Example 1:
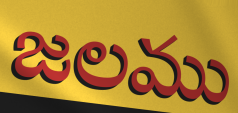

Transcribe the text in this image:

జలము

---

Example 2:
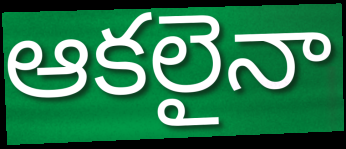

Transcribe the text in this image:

ఆకలైనా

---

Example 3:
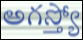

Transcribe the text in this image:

అగస్త్యో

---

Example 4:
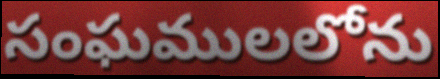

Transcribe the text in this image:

సంఘములలోను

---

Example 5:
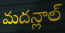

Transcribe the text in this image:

మదన్లాల్